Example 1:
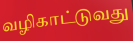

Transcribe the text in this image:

வழிகாட்டுவது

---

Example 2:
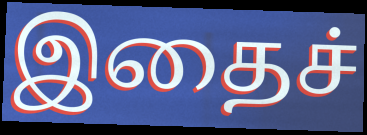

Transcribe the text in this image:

இதைச்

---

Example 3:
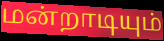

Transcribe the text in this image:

மன்றாடியும்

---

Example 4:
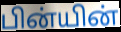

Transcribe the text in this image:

பின்யின்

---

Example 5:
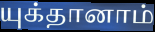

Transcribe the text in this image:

யுக்தானாம்